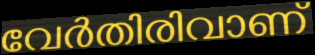
വേർതിരിവാണ്